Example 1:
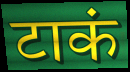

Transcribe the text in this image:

टाकं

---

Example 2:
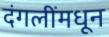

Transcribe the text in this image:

दंगलींमधून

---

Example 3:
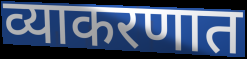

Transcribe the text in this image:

व्याकरणात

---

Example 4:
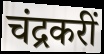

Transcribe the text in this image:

चंद्रकरीं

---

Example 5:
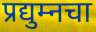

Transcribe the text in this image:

प्रद्युम्नचा